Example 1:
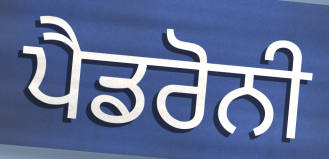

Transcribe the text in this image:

ਪੈਡਰੋਨੀ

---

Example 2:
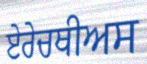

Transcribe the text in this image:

ਏਰੇਚਥੀਅਸ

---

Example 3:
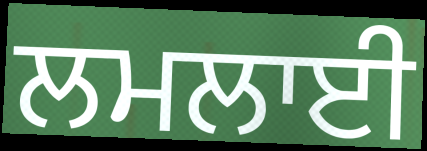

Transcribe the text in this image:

ਲਮਲਾਈ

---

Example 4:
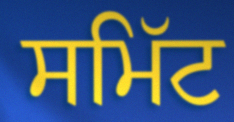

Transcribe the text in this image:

ਸਮਿੱਟ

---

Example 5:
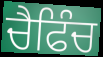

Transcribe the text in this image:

ਚੈਫਿੰਚ